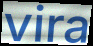
vira